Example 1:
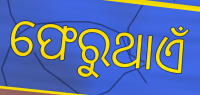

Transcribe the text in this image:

ଫେରୁଥାଏଁ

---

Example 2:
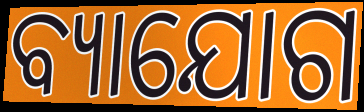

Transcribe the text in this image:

ବ୍ୟାଯୋଗ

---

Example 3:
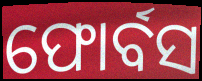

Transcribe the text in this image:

ଫୋର୍ବସ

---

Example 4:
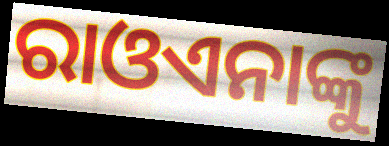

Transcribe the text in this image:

ରାଓଏନାଙ୍କୁ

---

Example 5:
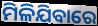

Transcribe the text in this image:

ମିଳିଯିବାରେ